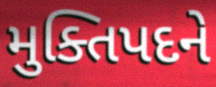
મુક્તિપદને